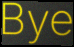
Bye